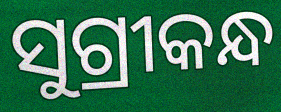
ସୁଗ୍ରୀକନ୍ଧ